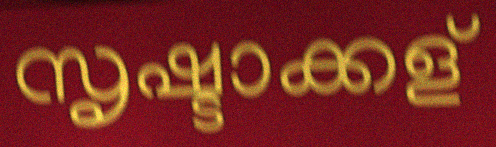
സൃഷ്ടാക്കള്